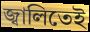
জ্বালিতেই